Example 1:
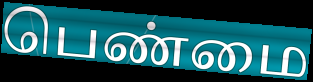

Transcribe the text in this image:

பெண்மை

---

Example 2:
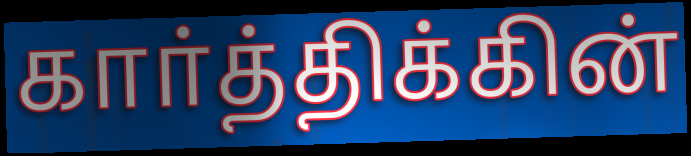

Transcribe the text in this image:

கார்த்திக்கின்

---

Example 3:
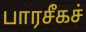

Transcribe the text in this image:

பாரசீகச்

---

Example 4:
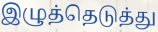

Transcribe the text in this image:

இழுத்தெடுத்து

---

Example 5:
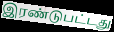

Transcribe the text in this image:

இரண்டுபட்டது